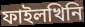
ফাইলখিনি